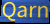
Qarn